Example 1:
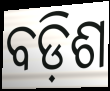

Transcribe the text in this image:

ବଡ଼ିଶ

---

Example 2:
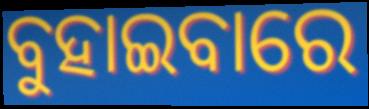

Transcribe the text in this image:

ବୁହାଇବାରେ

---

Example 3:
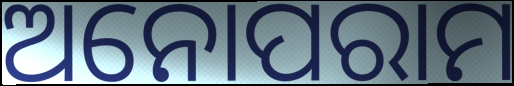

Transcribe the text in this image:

ଅନୋପରାମ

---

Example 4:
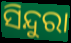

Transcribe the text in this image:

ସିନ୍ଦୁରା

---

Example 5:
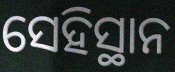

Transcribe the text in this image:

ସେହିସ୍ଥାନ